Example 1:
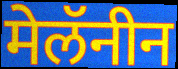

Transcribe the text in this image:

मेलॅनीन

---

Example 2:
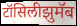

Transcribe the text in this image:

टॉसिलीझुमॅब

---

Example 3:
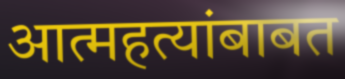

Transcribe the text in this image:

आत्महत्यांबाबत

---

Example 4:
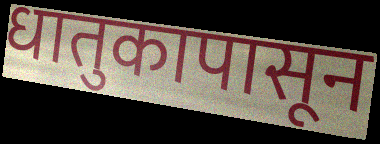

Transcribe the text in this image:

धातुकापासून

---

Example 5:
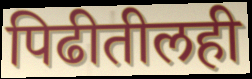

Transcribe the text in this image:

पिढीतीलही